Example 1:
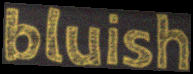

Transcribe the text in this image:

bluish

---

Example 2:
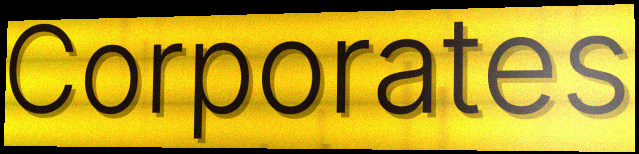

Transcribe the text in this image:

Corporates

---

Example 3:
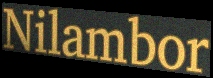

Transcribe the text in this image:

Nilambor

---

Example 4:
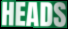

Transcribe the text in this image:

HEADS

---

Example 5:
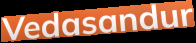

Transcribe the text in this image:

Vedasandur